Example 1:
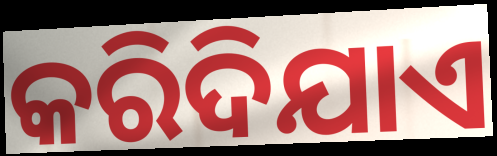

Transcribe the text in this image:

କରିଦିଯାଏ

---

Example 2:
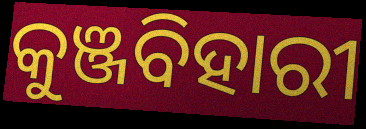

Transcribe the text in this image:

କୁଞ୍ଜବିହାରୀ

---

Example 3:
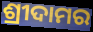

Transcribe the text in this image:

ଶ୍ରୀଦାମର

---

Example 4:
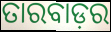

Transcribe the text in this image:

ତାରବାଡ଼ର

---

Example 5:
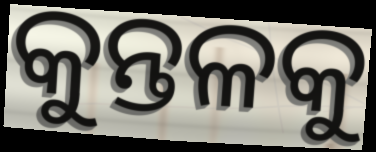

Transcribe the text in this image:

କୁନ୍ତଳକୁ